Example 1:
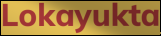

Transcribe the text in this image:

Lokayukta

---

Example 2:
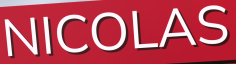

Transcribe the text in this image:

NICOLAS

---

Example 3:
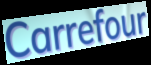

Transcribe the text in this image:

Carrefour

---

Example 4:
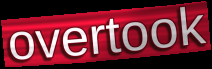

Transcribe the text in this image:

overtook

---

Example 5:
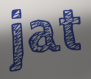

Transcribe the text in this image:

jat